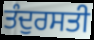
ਤੰਦੁਰਸਤੀ